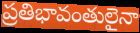
ప్రతిభావంతులైనా